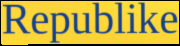
Republike